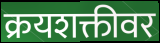
क्रयशक्तीवर